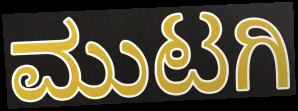
ಮುಟಗಿ